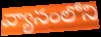
వ్యాసంలోని